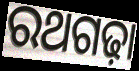
ରଥଗଢ଼ା